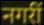
नगरीं